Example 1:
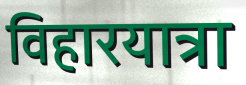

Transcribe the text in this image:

विहारयात्रा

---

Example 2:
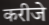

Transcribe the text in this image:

करीजे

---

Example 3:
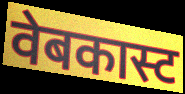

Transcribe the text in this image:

वेबकास्ट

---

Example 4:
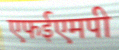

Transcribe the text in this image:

एफईएमपी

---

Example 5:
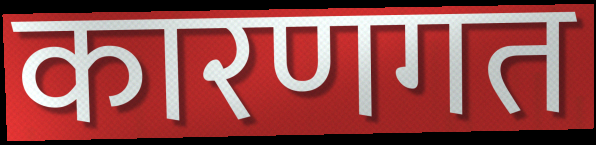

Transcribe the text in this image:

कारणगत